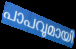
പാപവുമായി